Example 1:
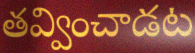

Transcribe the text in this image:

తవ్వించాడట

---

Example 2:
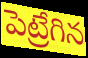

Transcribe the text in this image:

పెట్రేగిన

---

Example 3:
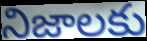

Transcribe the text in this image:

నిజాలకు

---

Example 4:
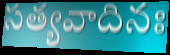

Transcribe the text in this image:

సత్యవాదినః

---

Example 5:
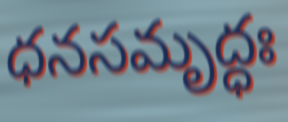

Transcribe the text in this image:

ధనసమృద్ధః